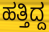
ಹತ್ತಿದ್ದ